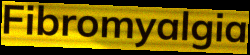
Fibromyalgia